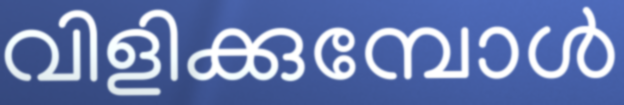
വിളിക്കുമ്പോൾ